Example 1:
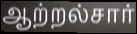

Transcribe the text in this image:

ஆற்றல்சார்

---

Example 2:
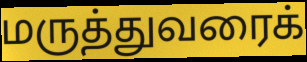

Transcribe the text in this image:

மருத்துவரைக்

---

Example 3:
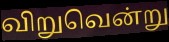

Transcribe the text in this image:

விறுவென்று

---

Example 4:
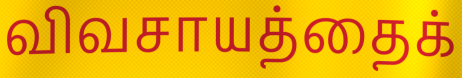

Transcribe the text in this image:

விவசாயத்தைக்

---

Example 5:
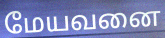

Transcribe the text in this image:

மேயவனை